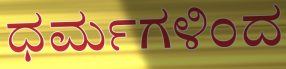
ಧರ್ಮಗಳಿಂದ